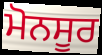
ਮੋਨਸੂਰ